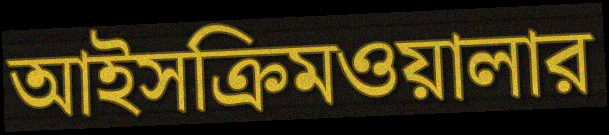
আইসক্রিমওয়ালার